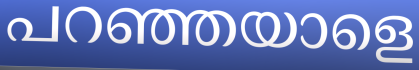
പറഞ്ഞയാളെ